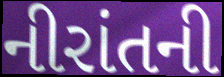
નીરાંતની